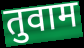
तुवाम